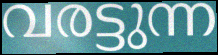
വരട്ടുന്ന